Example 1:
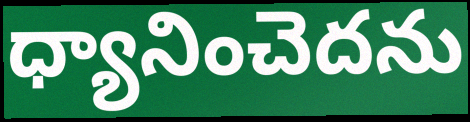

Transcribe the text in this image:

ధ్యానించెదను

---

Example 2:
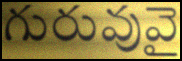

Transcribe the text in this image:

గురువువై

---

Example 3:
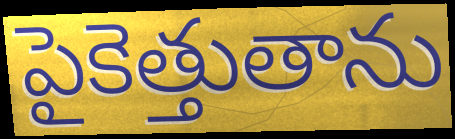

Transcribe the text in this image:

పైకెత్తుతాను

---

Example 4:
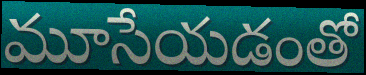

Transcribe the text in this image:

మూసేయడంతో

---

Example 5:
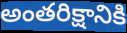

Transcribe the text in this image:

అంతరిక్షానికి